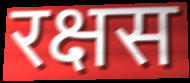
रक्षस